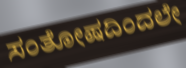
ಸಂತೋಷದಿಂದಲೇ